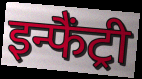
इन्फैंट्री